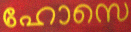
ഹോസെ